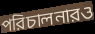
পরিচালনারও